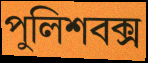
পুলিশবক্স